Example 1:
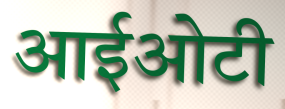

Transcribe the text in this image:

आईओटी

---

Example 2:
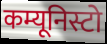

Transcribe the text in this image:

कम्यूनिस्टो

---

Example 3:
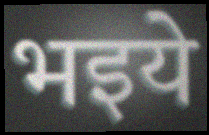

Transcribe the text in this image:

भइये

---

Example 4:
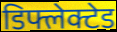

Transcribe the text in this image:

डिफ्लेक्टेड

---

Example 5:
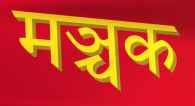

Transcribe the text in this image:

मञ्चक